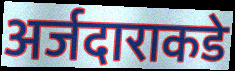
अर्जदाराकडे